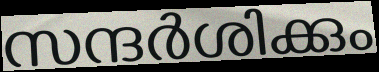
സന്ദർശിക്കും